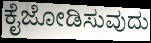
ಕೈಜೋಡಿಸುವುದು